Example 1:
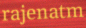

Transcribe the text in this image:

rajenatm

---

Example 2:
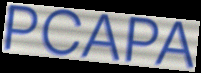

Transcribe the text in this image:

PCAPA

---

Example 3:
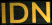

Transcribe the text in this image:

IDN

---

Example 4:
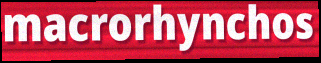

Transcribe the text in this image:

macrorhynchos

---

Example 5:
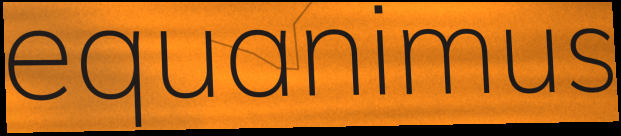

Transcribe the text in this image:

equanimus